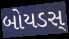
બોયડસ્